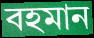
বহমান